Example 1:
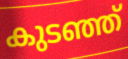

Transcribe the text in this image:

കുടഞ്ഞ്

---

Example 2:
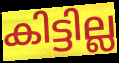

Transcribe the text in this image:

കിട്ടില്ല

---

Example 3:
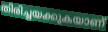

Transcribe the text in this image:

തിരിച്ചയക്കുകയാണ്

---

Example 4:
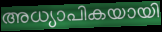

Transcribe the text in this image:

അധ്യാപികയായി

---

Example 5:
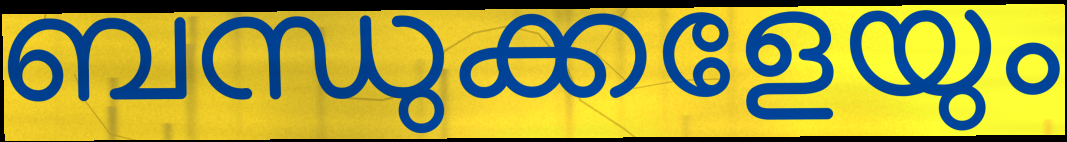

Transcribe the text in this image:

ബന്ധുക്കളേയും